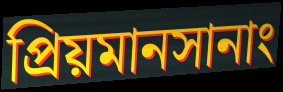
প্রিয়মানসানাং